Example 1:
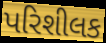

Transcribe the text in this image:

પરિશીલક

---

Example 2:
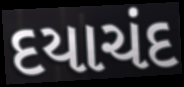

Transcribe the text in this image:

દયાચંદ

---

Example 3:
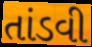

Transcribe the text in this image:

તાંડવી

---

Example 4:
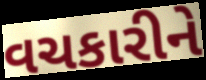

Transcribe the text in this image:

વચકારીને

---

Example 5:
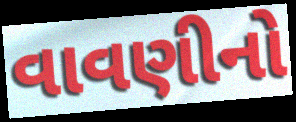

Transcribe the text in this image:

વાવણીનો